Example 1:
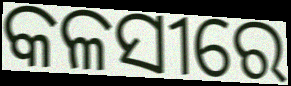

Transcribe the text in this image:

କଳସୀରେ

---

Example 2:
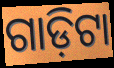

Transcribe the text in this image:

ଗାଡ଼ିଟା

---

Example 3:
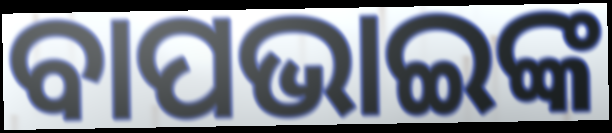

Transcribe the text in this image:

ବାପଭାଇଙ୍କ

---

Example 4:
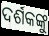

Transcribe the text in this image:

ଦର୍ଶକଙ୍କୁ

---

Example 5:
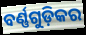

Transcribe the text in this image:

ବର୍ଣ୍ଣଗୁଡ଼ିକର